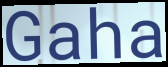
Gaha